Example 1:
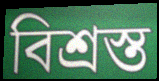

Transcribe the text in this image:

বিশ্রস্ত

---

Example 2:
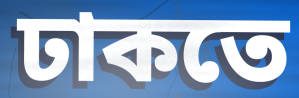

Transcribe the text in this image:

ঢাকতে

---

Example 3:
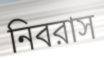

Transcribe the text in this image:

নিবরাস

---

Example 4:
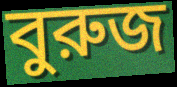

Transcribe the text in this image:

বুরুজ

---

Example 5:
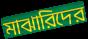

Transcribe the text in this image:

মাঝারিদের